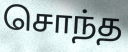
சொந்த